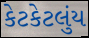
કેટકેટલુંય